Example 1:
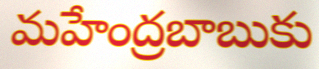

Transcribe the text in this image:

మహేంద్రబాబుకు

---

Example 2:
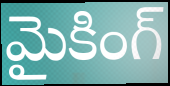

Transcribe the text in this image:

మైకింగ్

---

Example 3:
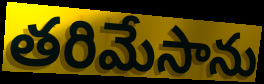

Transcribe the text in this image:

తరిమేసాను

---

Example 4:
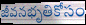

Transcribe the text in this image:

జీవనభృతికోసం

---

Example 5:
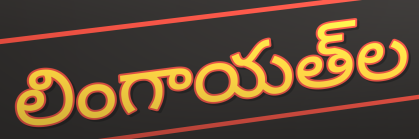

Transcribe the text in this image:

లింగాయత్‌ల